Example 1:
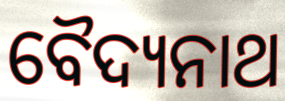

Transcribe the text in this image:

ବୈଦ୍ୟନାଥ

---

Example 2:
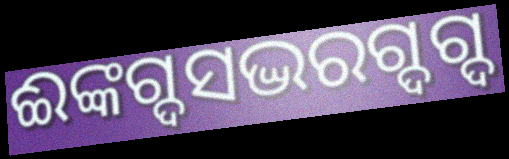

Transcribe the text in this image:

ଈଙ୍କଗ୍ଦସଦ୍ଭରଗ୍ଦଗ୍ଦ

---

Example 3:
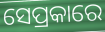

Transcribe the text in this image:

ସେପ୍ରକାରେ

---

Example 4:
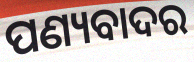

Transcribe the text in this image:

ପଣ୍ୟବାଦର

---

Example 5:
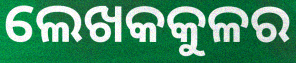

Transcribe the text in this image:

ଲେଖକକୁଳର